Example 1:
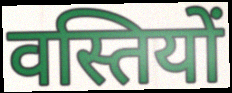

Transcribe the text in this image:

वस्तियों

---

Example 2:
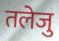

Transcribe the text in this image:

तलेजु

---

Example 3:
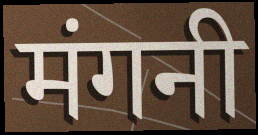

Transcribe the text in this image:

मंगनी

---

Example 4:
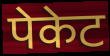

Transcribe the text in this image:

पेकेट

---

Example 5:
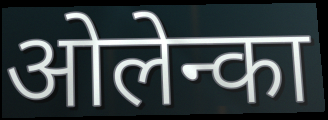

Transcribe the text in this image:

ओलेन्का